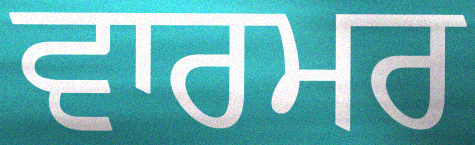
ਵਾਰਮਰ